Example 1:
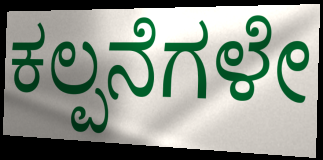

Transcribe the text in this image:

ಕಲ್ಪನೆಗಳೇ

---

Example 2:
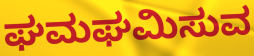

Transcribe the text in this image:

ಘಮಘಮಿಸುವ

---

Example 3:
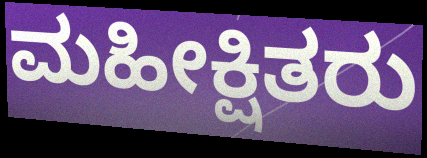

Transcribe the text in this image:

ಮಹೀಕ್ಷಿತರು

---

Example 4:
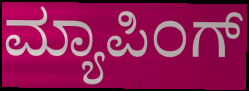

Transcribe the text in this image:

ಮ್ಯಾಪಿಂಗ್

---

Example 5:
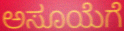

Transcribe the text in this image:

ಅಸೂಯೆಗೆ